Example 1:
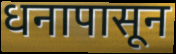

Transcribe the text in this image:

धनापासून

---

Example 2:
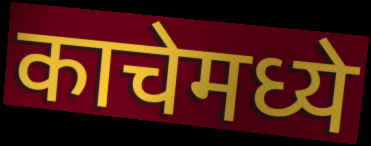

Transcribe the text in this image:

काचेमध्ये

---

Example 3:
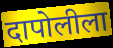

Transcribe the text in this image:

दापोलीला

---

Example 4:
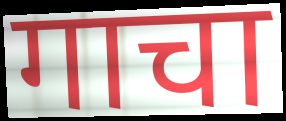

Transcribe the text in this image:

गाचा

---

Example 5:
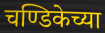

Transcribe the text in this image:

चण्डिकेच्या